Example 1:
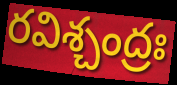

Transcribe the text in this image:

రవిశ్చంద్రః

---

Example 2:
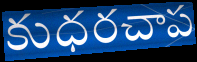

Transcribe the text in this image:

కుధరచాప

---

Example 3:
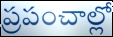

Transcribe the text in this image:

ప్రపంచాల్లో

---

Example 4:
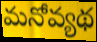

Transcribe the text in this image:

మనోవ్యథ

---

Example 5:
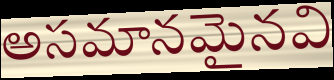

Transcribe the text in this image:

అసమానమైనవి